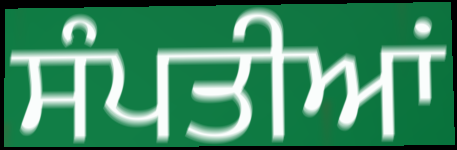
ਸੰਪਤੀਆਂ